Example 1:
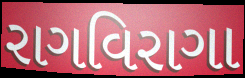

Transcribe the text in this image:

રાગવિરાગા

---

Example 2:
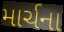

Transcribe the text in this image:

માર્ચના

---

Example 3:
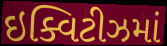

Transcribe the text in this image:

ઇક્વિટીઝમાં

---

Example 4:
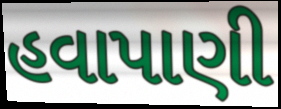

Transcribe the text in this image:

હવાપાણી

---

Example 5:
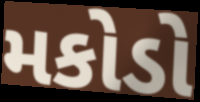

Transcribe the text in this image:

મકોડો